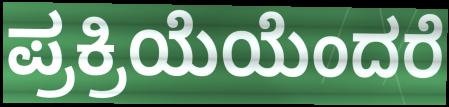
ಪ್ರಕ್ರಿಯೆಯೆಂದರೆ